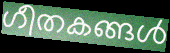
ഗീതകങ്ങൾ